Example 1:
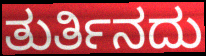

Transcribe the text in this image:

ತುರ್ತಿನದು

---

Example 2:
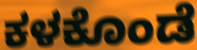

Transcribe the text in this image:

ಕಳಕೊಂಡೆ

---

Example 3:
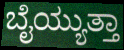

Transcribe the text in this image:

ಬೈಯ್ಯುತ್ತಾ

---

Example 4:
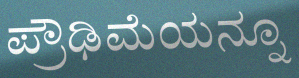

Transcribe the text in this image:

ಪ್ರೌಢಿಮೆಯನ್ನೂ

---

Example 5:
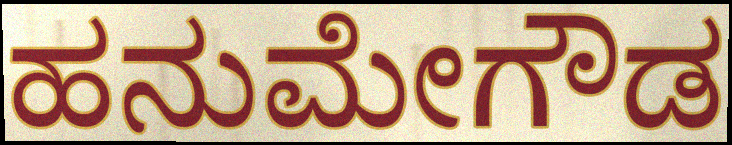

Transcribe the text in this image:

ಹನುಮೇಗೌಡ